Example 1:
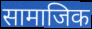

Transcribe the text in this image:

सामाजिक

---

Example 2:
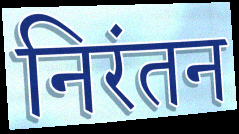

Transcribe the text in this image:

निरंतन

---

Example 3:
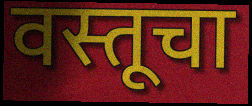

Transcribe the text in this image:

वस्तूचा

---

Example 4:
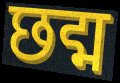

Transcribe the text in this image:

छद्म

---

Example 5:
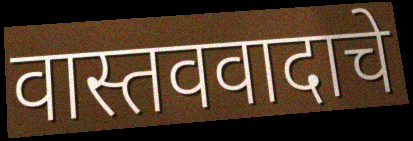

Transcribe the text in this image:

वास्तववादाचे